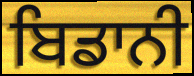
ਬਿਡਾਨੀ